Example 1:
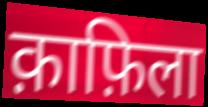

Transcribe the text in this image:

क़ाफ़िला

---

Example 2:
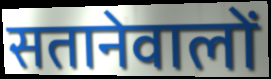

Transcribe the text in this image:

सतानेवालों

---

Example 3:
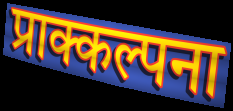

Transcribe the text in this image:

प्राक्कल्पना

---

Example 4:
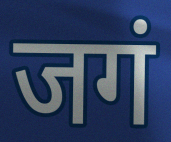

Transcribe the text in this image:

जगं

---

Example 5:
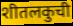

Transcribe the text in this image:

शीतलकुची